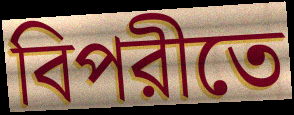
বিপরীতে